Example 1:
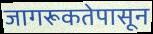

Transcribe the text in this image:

जागरूकतेपासून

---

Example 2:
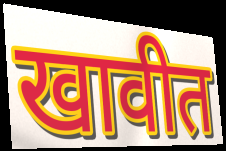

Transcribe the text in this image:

खावीत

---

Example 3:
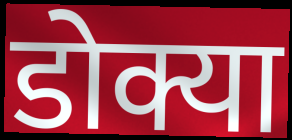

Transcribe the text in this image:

डोक्या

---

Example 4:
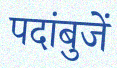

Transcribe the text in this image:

पदांबुजें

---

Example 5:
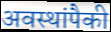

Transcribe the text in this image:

अवस्थांपैकी